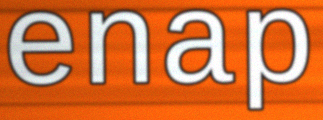
enap